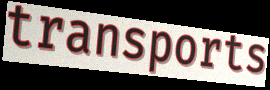
transports